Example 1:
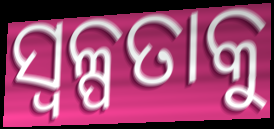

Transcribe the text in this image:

ସ୍ଵଳ୍ପତାକୁ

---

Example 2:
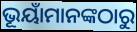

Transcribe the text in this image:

ଭୂୟାଁମାନଙ୍କଠାରୁ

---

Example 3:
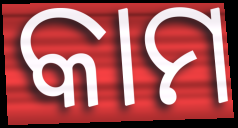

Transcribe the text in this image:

କାମ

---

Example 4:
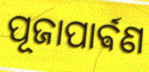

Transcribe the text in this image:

ପୂଜାପାର୍ଵଣ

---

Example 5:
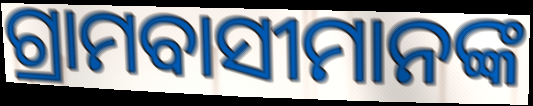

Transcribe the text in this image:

ଗ୍ରାମବାସୀମାନଙ୍କ